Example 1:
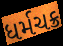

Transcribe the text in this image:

ધર્મચક્ર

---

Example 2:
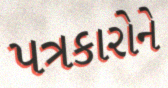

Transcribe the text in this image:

પત્રકારોને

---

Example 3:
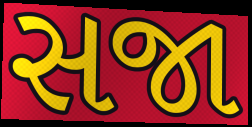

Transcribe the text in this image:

સજા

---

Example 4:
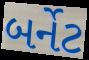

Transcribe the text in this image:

બર્નેટ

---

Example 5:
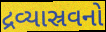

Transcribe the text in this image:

દ્રવ્યાસ્રવનો